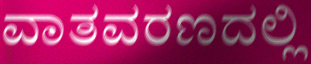
ವಾತವರಣದಲ್ಲಿ